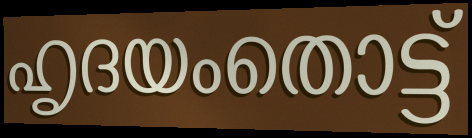
ഹൃദയംതൊട്ട്